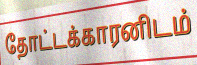
தோட்டக்காரனிடம்